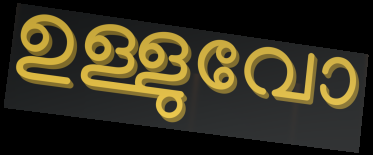
ഉള്ളുവോ